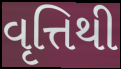
વૃત્તિથી